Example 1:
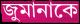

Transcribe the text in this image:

জুমানাকে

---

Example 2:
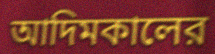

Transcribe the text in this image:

আদিমকালের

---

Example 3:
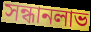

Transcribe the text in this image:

সন্ধানলাভ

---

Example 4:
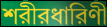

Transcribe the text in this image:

শরীরধারিণী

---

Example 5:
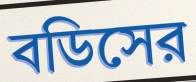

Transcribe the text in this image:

বডিসের